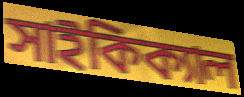
সাইকিক্যাল